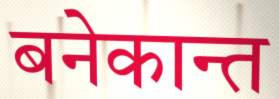
बनेकान्त